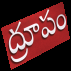
ద్రూపం